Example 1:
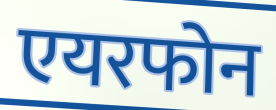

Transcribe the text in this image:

एयरफोन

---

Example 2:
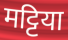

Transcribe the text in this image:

मट्टिया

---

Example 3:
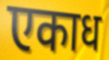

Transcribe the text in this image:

एकाध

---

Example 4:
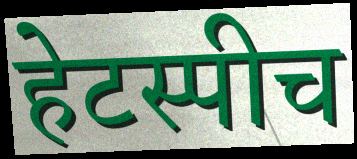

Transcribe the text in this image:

हेटस्पीच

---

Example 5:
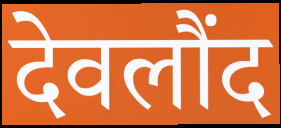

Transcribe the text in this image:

देवलौंद